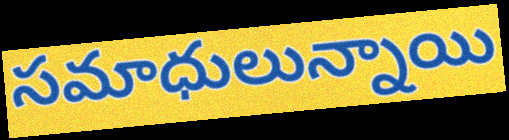
సమాధులున్నాయి